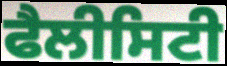
ਫੈਲੀਸਿਟੀ